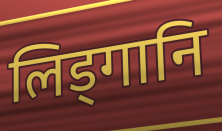
लिड्गानि